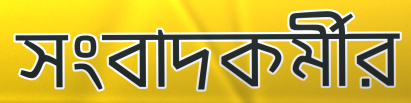
সংবাদকর্মীর